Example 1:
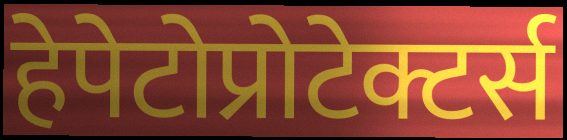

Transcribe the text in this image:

हेपेटोप्रोटेक्टर्स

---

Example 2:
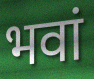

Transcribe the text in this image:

भवां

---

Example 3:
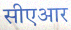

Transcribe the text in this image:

सीएआर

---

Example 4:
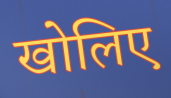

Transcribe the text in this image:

खोलिए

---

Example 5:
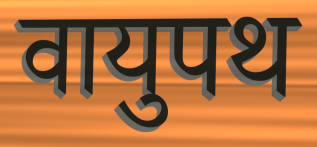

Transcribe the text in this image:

वायुपथ